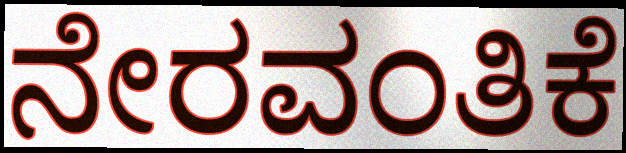
ನೇರವಂತಿಕೆ